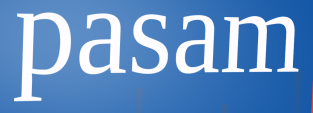
pasam